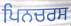
ਪਿਨਚਰਸ